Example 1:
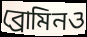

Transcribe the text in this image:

ব্রোমিনও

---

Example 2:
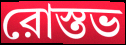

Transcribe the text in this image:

রোস্তভ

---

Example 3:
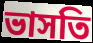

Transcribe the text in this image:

ভাসতি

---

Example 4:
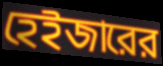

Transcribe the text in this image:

হেইজারের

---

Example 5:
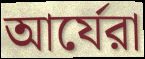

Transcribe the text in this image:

আর্যেরা